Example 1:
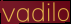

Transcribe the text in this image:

vadilo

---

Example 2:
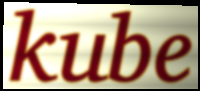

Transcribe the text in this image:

kube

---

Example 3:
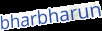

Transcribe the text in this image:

bharbharun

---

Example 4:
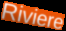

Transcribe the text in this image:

Riviere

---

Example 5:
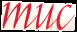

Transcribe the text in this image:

muc